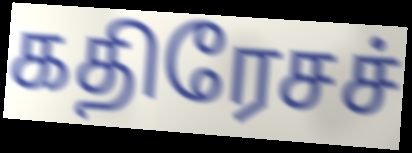
கதிரேசச்